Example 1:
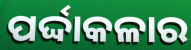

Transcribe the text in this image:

ପର୍ଦ୍ଦାକଳାର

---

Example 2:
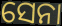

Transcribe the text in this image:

ସେନା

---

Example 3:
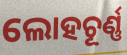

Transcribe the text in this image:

ଲୋହଚୂର୍ଣ୍ଣ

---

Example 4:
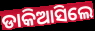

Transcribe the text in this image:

ଡାକିଆସିଲେ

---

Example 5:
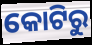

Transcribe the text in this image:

କୋଟିରୁ